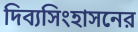
দিব্যসিংহাসনের